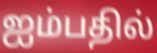
ஐம்பதில்